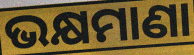
ଭକ୍ଷମାଣା